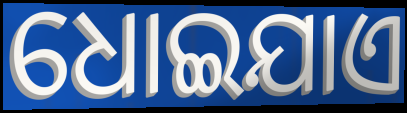
ଧୋଇଯାଏ